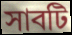
সাবটি